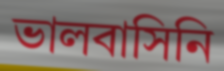
ভালবাসিনি